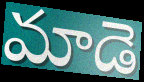
మాడె